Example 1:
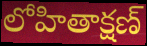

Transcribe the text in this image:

లోహితాక్షణ్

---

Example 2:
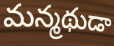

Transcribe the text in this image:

మన్మథుడా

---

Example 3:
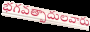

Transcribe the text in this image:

భగవత్పాదులవారు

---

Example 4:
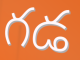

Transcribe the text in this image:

గడ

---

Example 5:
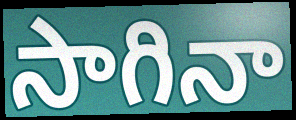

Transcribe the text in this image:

సాగినా